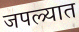
जपल्यात